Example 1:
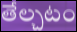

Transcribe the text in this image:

తేల్చటం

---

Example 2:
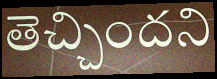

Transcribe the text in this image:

తెచ్చిందని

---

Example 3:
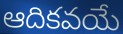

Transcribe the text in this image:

ఆదికవయే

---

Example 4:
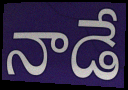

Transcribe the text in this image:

నాడే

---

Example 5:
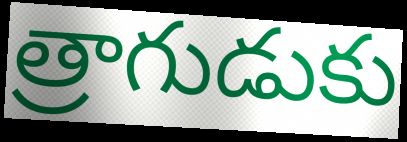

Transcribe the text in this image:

త్రాగుడుకు